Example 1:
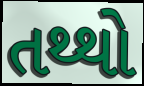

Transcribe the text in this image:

તથ્થો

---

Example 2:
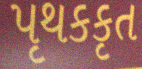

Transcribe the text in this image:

પૃથકકૃત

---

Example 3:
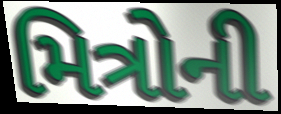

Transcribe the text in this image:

મિત્રોની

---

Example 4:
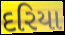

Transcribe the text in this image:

દરિયા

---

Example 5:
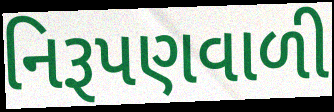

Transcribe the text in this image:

નિરૂપણવાળી